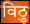
विठु